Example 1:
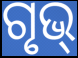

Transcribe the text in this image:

ଗୃଭ୍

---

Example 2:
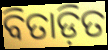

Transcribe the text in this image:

ବିତାଡ଼ିତ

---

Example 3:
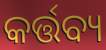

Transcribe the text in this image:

କର୍ତ୍ତବ୍ୟ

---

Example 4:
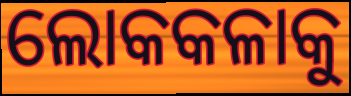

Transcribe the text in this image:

ଲୋକକଳାକୁ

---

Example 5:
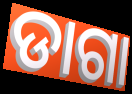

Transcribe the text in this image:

ଡାଗା